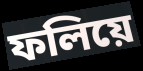
ফলিয়ে